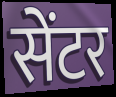
सेंटर